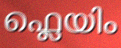
ഫ്ലെയിം